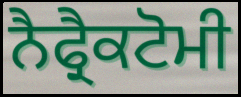
ਨੈਫ੍ਰੈਕਟੋਮੀ